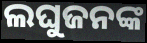
ଲଘୁଜନଙ୍କ